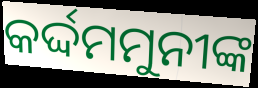
କର୍ଦ୍ଦମମୁନୀଙ୍କ